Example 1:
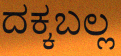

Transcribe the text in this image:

ದಕ್ಕಬಲ್ಲ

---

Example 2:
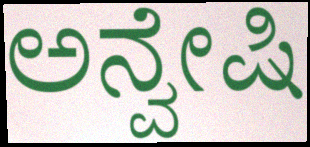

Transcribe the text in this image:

ಅನ್ವೇಷಿ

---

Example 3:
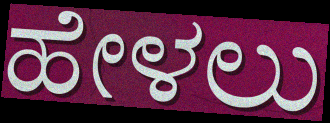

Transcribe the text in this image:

ಹೇಳಲು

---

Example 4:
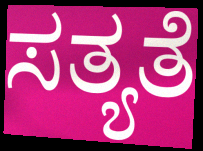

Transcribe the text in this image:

ಸತ್ಯತೆ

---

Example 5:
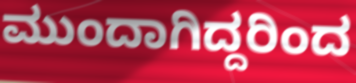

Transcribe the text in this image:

ಮುಂದಾಗಿದ್ದರಿಂದ